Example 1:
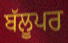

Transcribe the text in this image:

ਬੱਲੂਪਰ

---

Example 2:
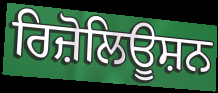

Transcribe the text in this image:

ਰਿਜ਼ੋਲਿਊਸ਼ਨ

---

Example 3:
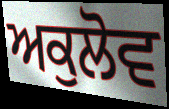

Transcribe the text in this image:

ਅਕੁਲੋਵ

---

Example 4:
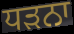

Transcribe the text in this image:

ਧੜਨਾ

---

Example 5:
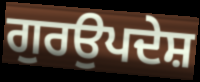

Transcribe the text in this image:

ਗੁਰਉਪਦੇਸ਼